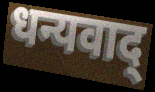
धन्यवाद्